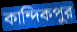
কান্দিকপুর